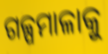
ଗଳ୍ପମାଳାକୁ